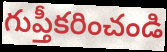
గుప్తీకరించండి